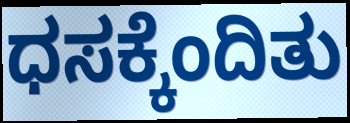
ಧಸಕ್ಕೆಂದಿತು